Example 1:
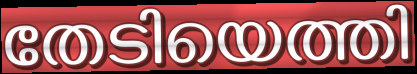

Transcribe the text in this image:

തേടിയെത്തി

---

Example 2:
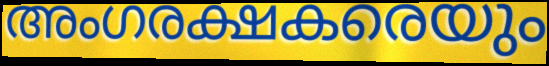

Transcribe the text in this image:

അംഗരക്ഷകരെയും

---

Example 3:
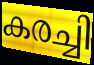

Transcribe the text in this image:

കരച്ചി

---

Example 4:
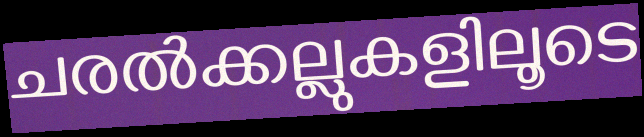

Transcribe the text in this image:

ചരൽക്കല്ലുകളിലൂടെ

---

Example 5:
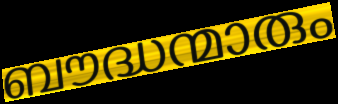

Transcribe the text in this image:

ബൗദ്ധന്മാരും